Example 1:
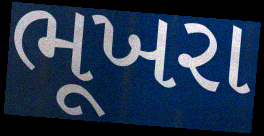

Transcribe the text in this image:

ભૂખરા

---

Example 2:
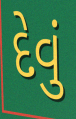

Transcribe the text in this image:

દેવું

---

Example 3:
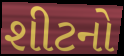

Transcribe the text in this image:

શીટનો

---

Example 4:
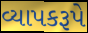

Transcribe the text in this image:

વ્યાપકરૂપે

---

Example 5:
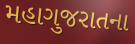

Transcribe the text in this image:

મહાગુજરાતના